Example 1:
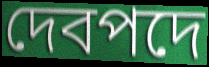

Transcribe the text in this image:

দেবপদে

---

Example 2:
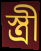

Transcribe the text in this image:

স্ত্রী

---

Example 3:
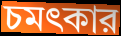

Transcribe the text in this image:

চমৎকার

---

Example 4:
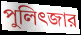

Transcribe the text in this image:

পুলিৎজার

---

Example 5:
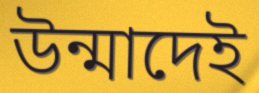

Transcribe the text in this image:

উন্মাদেই